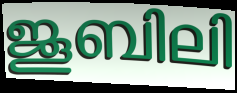
ജൂബിലി